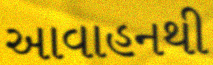
આવાહનથી